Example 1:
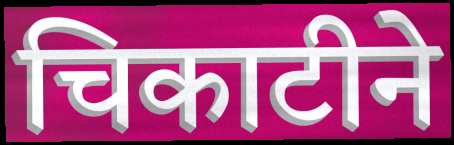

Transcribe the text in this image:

चिकाटीने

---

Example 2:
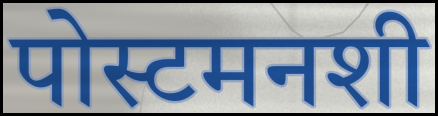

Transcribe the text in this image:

पोस्टमनशी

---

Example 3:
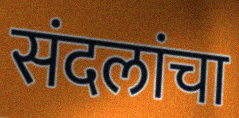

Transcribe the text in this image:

संदलांचा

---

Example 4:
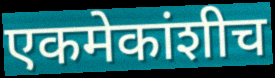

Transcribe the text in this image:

एकमेकांशीच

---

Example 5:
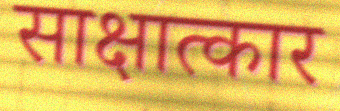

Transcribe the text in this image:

साक्षात्कार